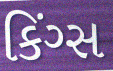
કિંગ્સ